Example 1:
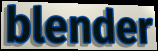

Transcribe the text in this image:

blender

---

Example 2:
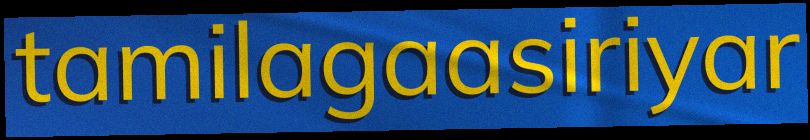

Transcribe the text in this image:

tamilagaasiriyar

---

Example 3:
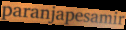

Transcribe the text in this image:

paranjapesamir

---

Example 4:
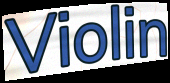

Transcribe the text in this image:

Violin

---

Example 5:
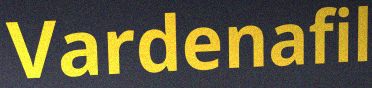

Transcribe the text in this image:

Vardenafil